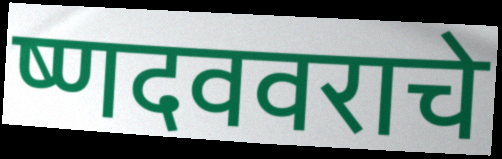
ष्णदववराचे